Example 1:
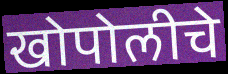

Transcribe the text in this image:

खोपोलीचे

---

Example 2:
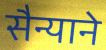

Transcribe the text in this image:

सैन्याने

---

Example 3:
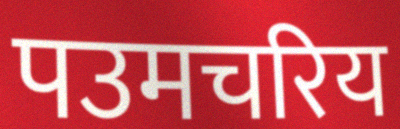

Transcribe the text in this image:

पउमचरिय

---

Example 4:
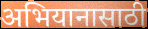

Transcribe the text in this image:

अभियानासाठी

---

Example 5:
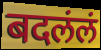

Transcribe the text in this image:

बदलंलं